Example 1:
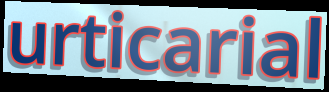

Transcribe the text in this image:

urticarial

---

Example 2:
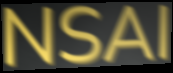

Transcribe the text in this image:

NSAI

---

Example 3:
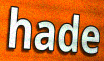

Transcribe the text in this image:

hade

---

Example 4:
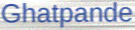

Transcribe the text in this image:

Ghatpande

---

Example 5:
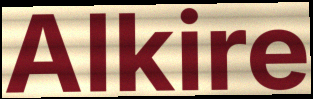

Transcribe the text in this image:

Alkire